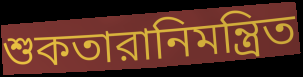
শুকতারানিমন্ত্রিত